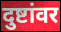
दुष्टांवर